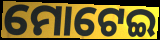
ମୋଟେଇ